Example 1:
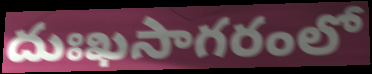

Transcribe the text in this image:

దుఃఖసాగరంలో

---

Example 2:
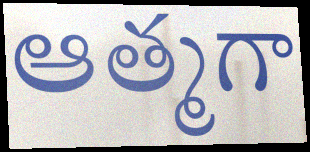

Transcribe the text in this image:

ఆత్మగా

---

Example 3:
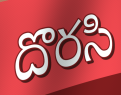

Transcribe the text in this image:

దొరసి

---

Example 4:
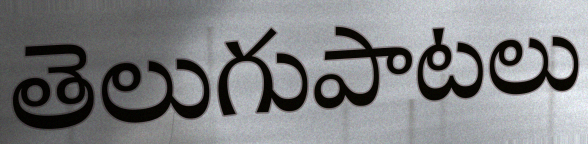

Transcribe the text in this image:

తెలుగుపాటలు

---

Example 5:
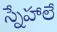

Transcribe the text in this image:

స్నేహాలే